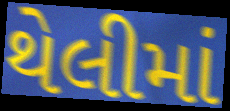
થેલીમાં